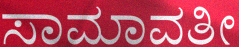
ಸಾಮಾವತೀ